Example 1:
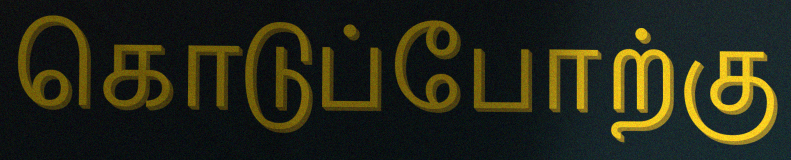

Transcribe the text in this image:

கொடுப்போற்கு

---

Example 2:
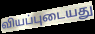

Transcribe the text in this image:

வியப்புடையது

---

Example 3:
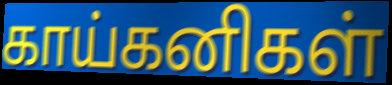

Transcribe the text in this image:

காய்கனிகள்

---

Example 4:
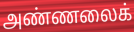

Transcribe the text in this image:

அண்ணலைக்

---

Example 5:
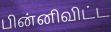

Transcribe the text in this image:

பின்னிவிட்ட